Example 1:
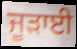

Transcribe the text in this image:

ਜੂੜਾਈ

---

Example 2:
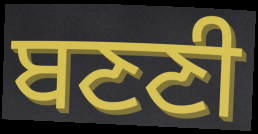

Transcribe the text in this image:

ਬਣਣੀ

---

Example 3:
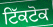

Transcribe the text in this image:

ਟਿੱਕਟੋਕ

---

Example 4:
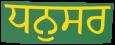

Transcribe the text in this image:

ਧਨੁਸਰ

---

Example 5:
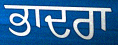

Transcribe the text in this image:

ਭਾਦਰਾ